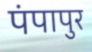
पंपापुर